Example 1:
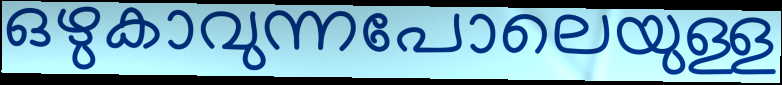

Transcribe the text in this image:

ഒഴുകാവുന്നപോലെയുള്ള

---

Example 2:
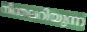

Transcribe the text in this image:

നീന്തലറിയുന്ന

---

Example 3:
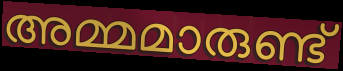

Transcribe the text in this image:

അമ്മമാരുണ്ട്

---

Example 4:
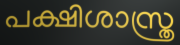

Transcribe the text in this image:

പക്ഷിശാസ്ത്ര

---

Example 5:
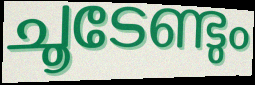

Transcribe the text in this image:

ചൂടേണ്ടും